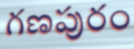
గణపురం